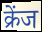
क्रेंज